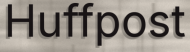
Huffpost